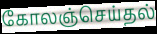
கோலஞ்செய்தல்